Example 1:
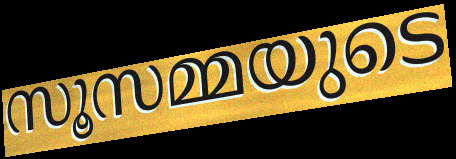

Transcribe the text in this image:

സൂസമ്മയുടെ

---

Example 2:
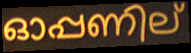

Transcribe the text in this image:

ഓപ്പണില്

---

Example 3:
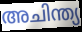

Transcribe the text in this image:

അചിന്ത്യ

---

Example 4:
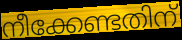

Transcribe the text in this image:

നീക്കേണ്ടതിന്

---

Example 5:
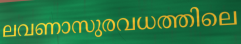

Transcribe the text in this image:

ലവണാസുരവധത്തിലെ